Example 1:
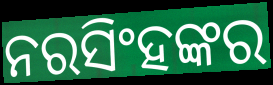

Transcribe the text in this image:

ନରସିଂହଙ୍କର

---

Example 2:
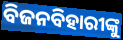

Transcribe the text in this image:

ବିଜନବିହାରୀଙ୍କୁ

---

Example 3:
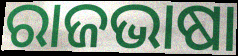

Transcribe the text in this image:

ରାଜଭାଷା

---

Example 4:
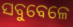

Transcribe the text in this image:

ସବୁବେଳେ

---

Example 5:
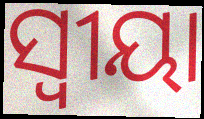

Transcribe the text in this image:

ସ୍ଵୀୟା